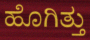
ಹೊಗಿತ್ತು